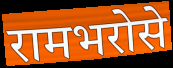
रामभरोसे